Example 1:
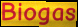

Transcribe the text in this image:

Biogas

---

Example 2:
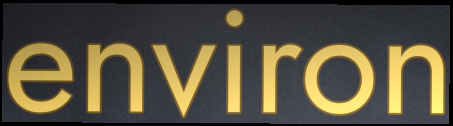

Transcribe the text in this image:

environ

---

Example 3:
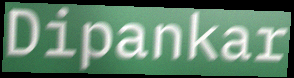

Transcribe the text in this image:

Dipankar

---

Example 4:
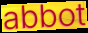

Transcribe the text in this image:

abbot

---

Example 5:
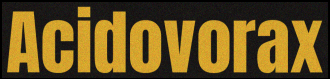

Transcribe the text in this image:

Acidovorax